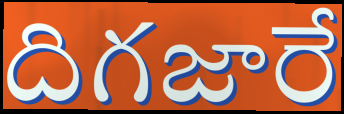
దిగజారే